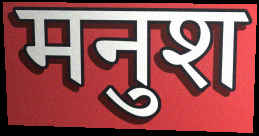
मनुश